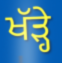
ਖੱੜ੍ਹੇ